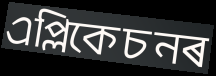
এপ্লিকেচনৰ